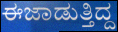
ಈಜಾಡುತ್ತಿದ್ದ